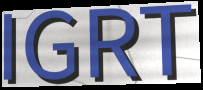
IGRT